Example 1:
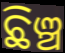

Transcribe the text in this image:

ଛିଞ୍ଚ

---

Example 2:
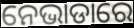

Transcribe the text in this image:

ନେଭାଡାରେ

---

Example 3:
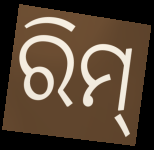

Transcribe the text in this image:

ରିମ୍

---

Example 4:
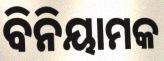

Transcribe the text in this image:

ବିନିୟାମକ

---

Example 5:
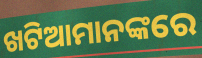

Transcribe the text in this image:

ଖଟିଆମାନଙ୍କରେ